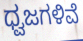
ಧ್ವಜಗಳಿವೆ